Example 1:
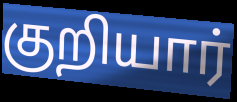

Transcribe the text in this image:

குறியார்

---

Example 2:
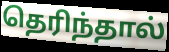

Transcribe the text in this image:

தெரிந்தால்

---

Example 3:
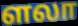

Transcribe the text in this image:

ளலா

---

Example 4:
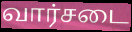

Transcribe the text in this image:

வார்சடை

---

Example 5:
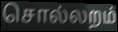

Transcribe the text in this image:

சொல்லறம்